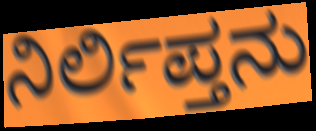
ನಿರ್ಲಿಪ್ತನು